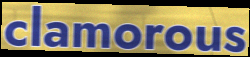
clamorous